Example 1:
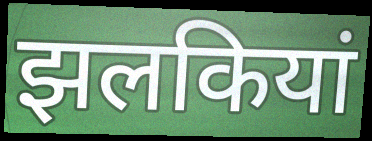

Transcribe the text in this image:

झलकियां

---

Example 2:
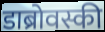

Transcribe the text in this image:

डाब्रोवस्की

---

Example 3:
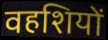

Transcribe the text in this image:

वहशियों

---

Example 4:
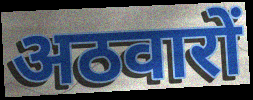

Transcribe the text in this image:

अठवारों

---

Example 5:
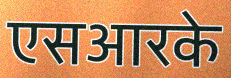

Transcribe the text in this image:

एसआरके